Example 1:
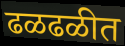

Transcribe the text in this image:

ढळढळीत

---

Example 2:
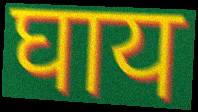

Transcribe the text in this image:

घाय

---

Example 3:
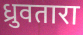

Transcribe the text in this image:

ध्रुवतारा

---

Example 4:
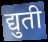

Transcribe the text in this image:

द्युती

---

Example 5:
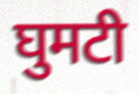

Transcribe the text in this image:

घुमटी